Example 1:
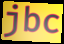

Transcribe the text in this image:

jbc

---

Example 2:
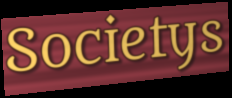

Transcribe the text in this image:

Societys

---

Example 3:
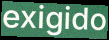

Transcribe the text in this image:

exigido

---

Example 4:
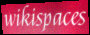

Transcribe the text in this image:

wikispaces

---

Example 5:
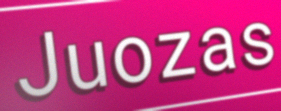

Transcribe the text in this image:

Juozas